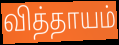
வித்தாயம்